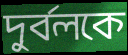
দুর্বলকে